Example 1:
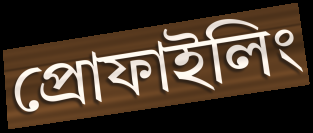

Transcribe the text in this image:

প্রোফাইলিং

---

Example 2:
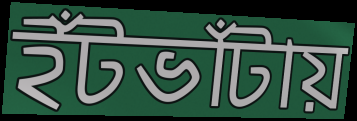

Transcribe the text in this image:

ইঁটভাঁটায়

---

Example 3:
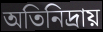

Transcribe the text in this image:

অতিনিদ্রায়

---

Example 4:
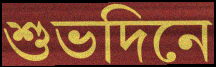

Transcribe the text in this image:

শুভদিনে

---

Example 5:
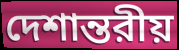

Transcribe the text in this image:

দেশান্তরীয়